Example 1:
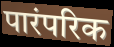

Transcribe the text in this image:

पारंपरिक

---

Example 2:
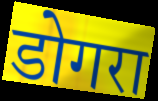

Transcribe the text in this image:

डोगरा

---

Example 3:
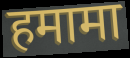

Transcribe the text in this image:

हमामा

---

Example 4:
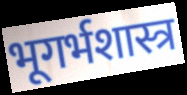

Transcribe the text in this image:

भूगर्भशास्त्र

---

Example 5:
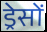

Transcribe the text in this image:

ड्रेसों